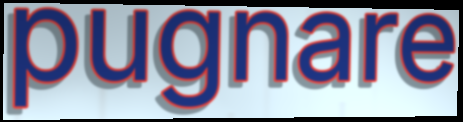
pugnare